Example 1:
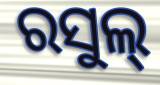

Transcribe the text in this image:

ରସୁଲ୍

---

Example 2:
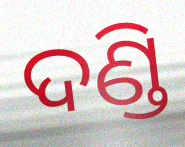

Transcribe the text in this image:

ଦଣ୍ଡି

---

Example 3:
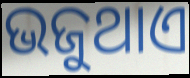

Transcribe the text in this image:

ଭଜୁଥାଏ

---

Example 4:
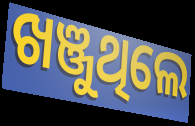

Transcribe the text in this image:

ଖଞ୍ଜୁଥିଲେ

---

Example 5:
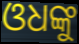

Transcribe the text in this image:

ଓଧଙ୍କୁ